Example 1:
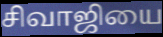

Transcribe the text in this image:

சிவாஜியை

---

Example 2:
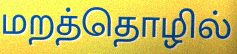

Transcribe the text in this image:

மறத்தொழில்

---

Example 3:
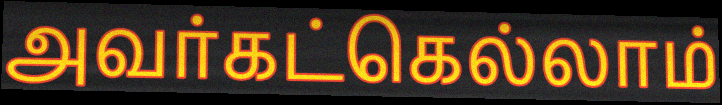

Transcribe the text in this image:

அவர்கட்கெல்லாம்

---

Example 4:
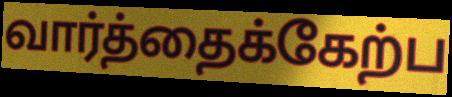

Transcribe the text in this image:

வார்த்தைக்கேற்ப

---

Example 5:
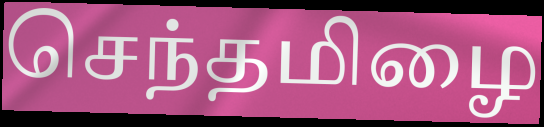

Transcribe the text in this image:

செந்தமிழை